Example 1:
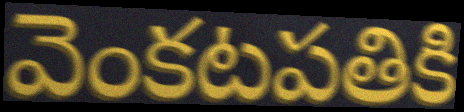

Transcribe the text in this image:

వెంకటపతికి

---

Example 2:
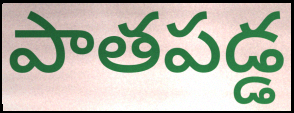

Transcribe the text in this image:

పాతపడ్డ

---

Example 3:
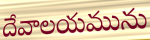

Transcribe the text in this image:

దేవాలయమును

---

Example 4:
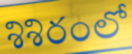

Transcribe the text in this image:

శిశిరంలో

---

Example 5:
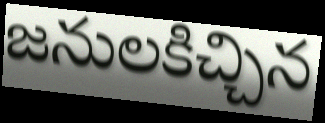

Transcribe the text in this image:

జనులకిచ్చిన